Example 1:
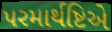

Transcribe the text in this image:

પરમાર્થષ્ટિએ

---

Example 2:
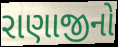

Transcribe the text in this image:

રાણાજીનો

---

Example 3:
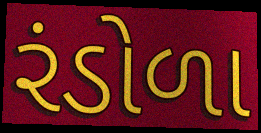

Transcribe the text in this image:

રંડોળા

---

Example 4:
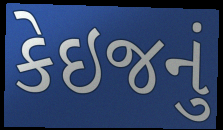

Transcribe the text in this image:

કેઇજનું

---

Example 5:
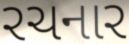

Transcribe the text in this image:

રચનાર